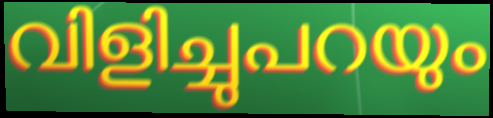
വിളിച്ചുപറയും